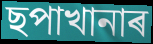
ছপাখানাৰ